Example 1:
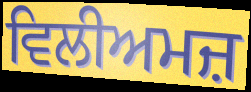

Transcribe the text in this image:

ਵਿਲੀਅਮਜ਼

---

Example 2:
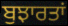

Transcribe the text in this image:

ਬੁਝਾਰਤਾਂ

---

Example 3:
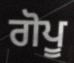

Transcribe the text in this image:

ਗੋਪੂ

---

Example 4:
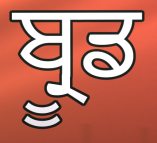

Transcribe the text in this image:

ਬ੍ਰੂਡ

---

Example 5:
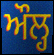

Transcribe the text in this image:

ਔਲ੍ਹ